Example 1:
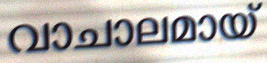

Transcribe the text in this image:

വാചാലമായ്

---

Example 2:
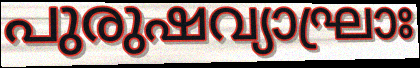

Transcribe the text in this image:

പുരുഷവ്യാഘ്രാഃ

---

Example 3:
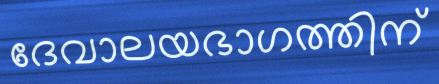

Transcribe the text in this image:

ദേവാലയഭാഗത്തിന്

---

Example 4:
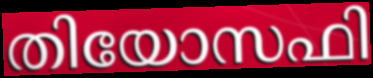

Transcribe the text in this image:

തിയോസഫി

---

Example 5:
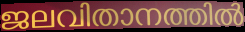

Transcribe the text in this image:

ജലവിതാനത്തിൽ